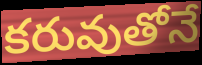
కరువుతోనే